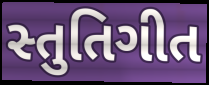
સ્તુતિગીત